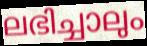
ലഭിച്ചാലും